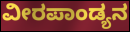
ವೀರಪಾಂಡ್ಯನ